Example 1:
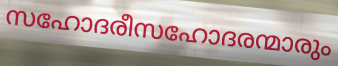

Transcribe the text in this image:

സഹോദരീസഹോദരന്മാരും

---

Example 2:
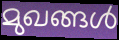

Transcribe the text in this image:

മുഖങ്ങൾ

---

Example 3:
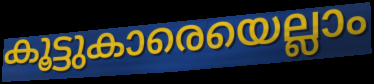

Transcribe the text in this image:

കൂട്ടുകാരെയെല്ലാം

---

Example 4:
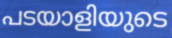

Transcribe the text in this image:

പടയാളിയുടെ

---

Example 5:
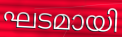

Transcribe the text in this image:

ഘടമായി